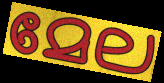
മേല